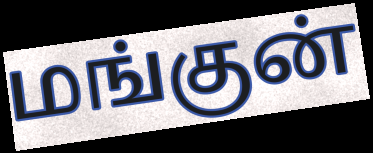
மங்குன்